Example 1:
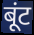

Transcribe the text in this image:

बूंट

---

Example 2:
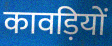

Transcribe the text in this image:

कावड़ियों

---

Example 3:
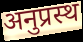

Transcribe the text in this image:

अनुप्रस्थ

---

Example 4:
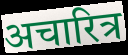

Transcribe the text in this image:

अचारित्र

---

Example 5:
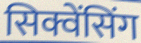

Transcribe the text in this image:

सिक्वेंसिंग